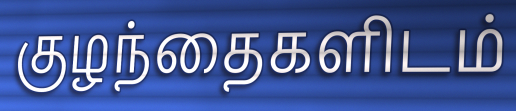
குழந்தைகளிடம்